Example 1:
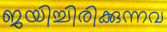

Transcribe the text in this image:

ജയിച്ചിരിക്കുന്നവ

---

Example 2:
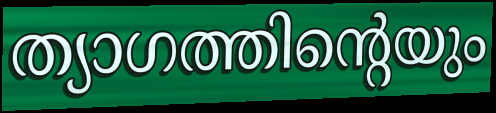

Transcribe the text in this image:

ത്യാഗത്തിന്റെയും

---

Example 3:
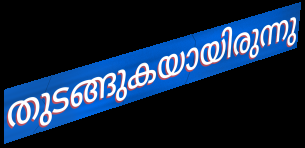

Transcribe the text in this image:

തുടങ്ങുകയായിരുന്നു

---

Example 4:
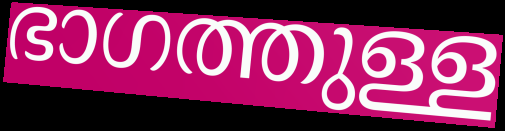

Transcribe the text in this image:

ഭാഗത്തുള്ള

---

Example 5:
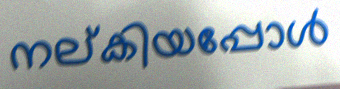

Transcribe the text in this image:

നല്കിയപ്പോൾ